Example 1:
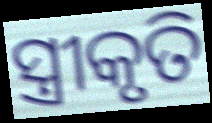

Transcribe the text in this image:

ସ୍ତ୍ରୀକୃତି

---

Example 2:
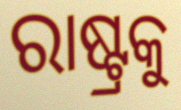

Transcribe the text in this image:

ରାଷ୍ଟ୍ରକୁ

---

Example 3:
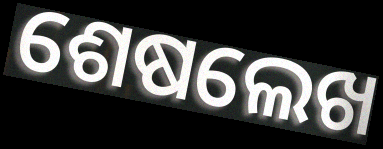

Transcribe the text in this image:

ଶେଷଲେଖ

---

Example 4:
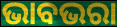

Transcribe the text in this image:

ଭାବଭରା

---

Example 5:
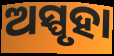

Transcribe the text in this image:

ଅସ୍ପୃହା